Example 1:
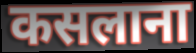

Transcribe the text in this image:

कसलाना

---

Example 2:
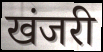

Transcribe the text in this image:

खंजरी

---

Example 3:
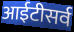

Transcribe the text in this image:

आईटीसर्व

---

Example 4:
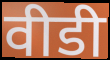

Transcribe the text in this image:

वीडी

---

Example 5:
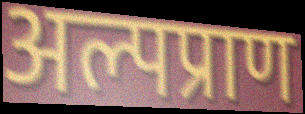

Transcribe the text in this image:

अल्पप्राण